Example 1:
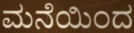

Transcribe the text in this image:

ಮನೆಯಿಂದ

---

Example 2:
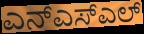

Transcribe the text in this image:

ಎನ್ಎಸ್ಎಲ್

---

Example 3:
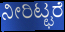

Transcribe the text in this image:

ನೀರಿಟ್ಟರೆ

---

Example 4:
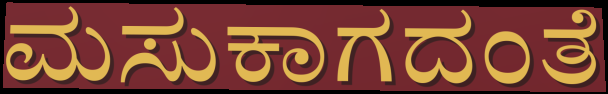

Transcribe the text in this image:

ಮಸುಕಾಗದಂತೆ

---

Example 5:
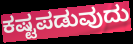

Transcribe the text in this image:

ಕಷ್ಟಪಡುವುದು